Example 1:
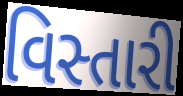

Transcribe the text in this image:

વિસ્તારી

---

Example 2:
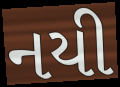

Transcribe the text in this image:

નયી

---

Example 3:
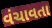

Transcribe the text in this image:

વંચાવતા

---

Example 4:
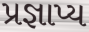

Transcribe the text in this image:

પ્રજ્ઞાપ્ય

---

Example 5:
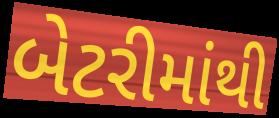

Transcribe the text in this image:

બેટરીમાંથી